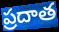
ప్రదాత